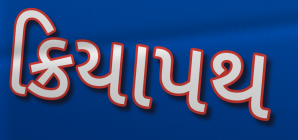
ક્રિયાપથ